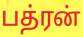
பத்ரன்